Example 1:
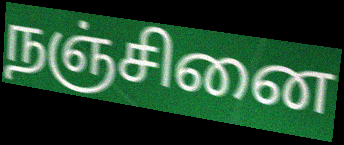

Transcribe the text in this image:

நஞ்சினை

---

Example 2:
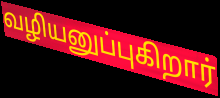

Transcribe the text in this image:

வழியனுப்புகிறார்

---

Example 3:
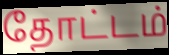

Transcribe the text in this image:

தோட்டம்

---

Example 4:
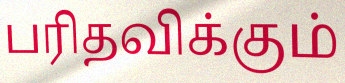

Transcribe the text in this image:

பரிதவிக்கும்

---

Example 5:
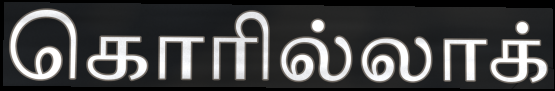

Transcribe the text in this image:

கொரில்லாக்